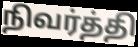
நிவர்த்தி